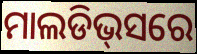
ମାଲଡିଭ୍‌ସରେ